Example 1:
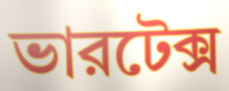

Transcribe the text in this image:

ভারটেক্স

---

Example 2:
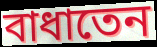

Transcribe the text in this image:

বাধাতেন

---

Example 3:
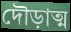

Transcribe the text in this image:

দৌড়াত্ম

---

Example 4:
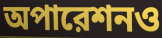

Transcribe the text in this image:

অপারেশনও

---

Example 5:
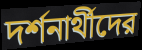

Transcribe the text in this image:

দর্শনার্থীদের